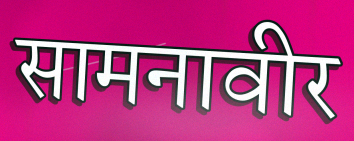
सामनावीर